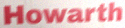
Howarth